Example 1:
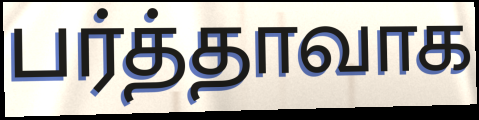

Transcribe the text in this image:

பர்த்தாவாக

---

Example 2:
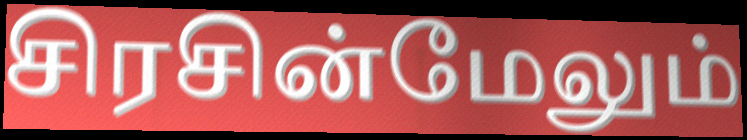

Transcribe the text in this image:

சிரசின்மேலும்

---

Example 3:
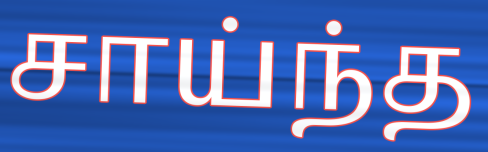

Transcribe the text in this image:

சாய்ந்த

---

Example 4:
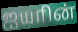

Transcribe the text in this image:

ஐயரின்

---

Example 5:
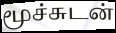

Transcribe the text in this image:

மூச்சுடன்